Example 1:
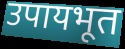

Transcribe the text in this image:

उपायभूत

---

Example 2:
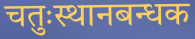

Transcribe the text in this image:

चतुःस्थानबन्धक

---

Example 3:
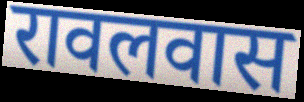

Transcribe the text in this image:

रावलवास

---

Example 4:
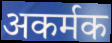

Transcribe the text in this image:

अकर्मक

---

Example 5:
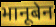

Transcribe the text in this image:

भानूबेन